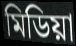
মিডিয়া